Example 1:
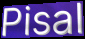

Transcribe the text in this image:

Pisal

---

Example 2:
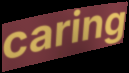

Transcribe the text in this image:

caring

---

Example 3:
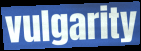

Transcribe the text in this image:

vulgarity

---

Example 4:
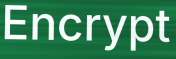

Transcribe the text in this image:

Encrypt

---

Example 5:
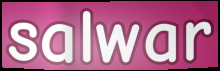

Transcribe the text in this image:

salwar